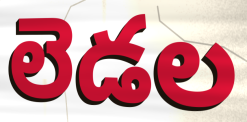
లెడల